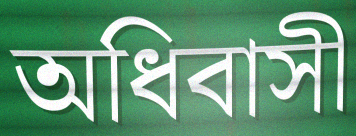
অধিবাসী